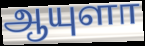
ஆயுளா